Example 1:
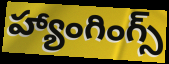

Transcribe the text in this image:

హ్యాంగింగ్స్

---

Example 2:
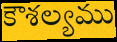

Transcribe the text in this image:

కౌశల్యము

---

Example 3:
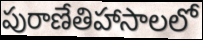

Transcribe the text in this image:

పురాణేతిహాసాలలో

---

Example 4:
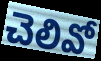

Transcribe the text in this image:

చెలివో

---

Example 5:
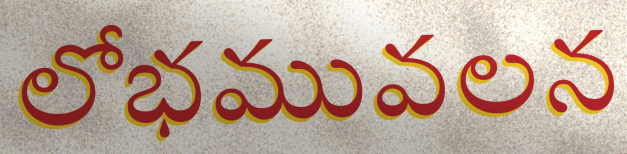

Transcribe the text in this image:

లోభమువలన